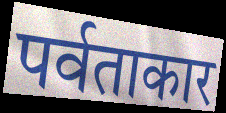
पर्वताकार